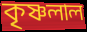
কৃষ্ণলাল